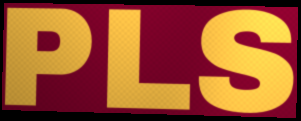
PLS